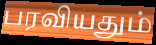
பரவியதும்